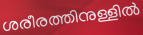
ശരീരത്തിനുള്ളിൽ